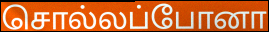
சொல்லப்போனா